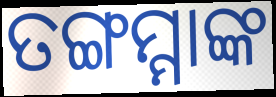
ତଙ୍ଗମ୍ମାଙ୍କ